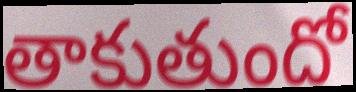
తాకుతుందో